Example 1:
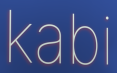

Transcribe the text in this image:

kabi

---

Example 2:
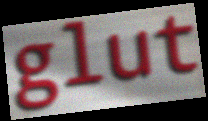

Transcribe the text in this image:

glut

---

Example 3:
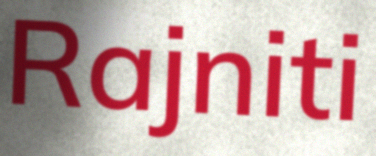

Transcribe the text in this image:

Rajniti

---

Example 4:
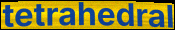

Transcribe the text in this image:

tetrahedral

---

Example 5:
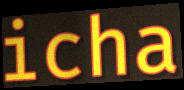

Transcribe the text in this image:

icha